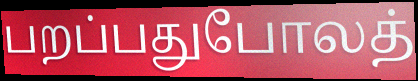
பறப்பதுபோலத்